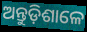
ଅନ୍ତୁଡ଼ିଶାଳେ